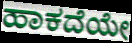
ಹಾಕದೆಯೇ